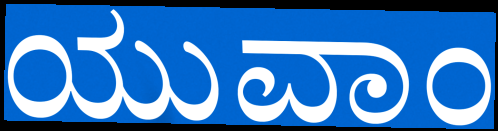
ಯುವಾಂ